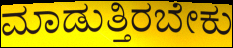
ಮಾಡುತ್ತಿರಬೇಕು